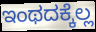
ಇಂಥದಕ್ಕೆಲ್ಲ